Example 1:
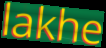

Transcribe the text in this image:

lakhe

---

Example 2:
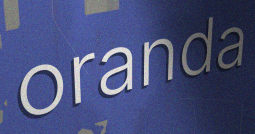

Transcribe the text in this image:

oranda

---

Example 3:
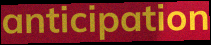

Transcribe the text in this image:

anticipation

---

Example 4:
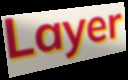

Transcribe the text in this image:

Layer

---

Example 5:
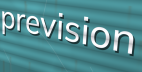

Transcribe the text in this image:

prevision